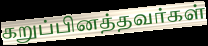
கறுப்பினத்தவர்கள்